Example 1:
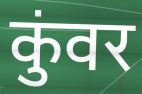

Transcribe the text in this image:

कुंवर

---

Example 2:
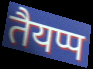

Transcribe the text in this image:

तैयप्प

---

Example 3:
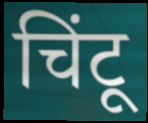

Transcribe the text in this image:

चिंटू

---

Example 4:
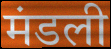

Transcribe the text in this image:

मंडली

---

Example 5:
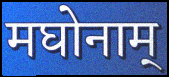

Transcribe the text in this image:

मघोनाम्